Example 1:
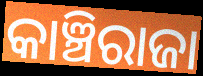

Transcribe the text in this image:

କାଞ୍ଚିରାଜା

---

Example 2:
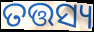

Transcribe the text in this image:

ତତ୍ତସ୍ୟ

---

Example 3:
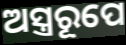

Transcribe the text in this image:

ଅସ୍ତ୍ରରୂପେ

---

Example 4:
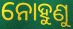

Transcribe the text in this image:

ନୋହୁଣୁ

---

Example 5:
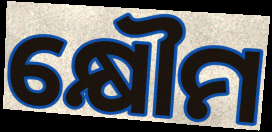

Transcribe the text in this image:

କ୍ଷୌମ